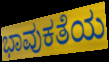
ಭಾವುಕತೆಯ